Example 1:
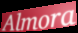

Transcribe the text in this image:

Almora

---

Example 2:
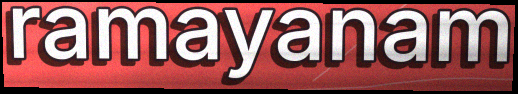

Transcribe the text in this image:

ramayanam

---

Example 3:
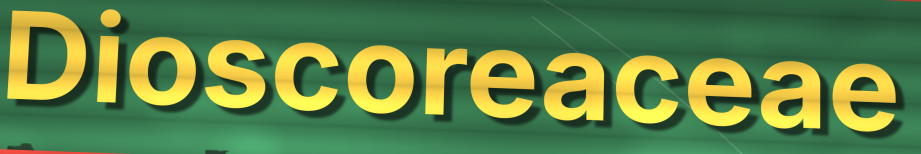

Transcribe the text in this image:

Dioscoreaceae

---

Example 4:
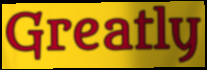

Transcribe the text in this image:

Greatly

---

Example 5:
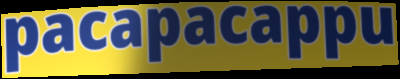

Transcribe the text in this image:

pacapacappu